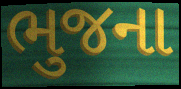
ભુજના